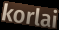
korlai